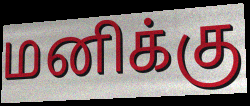
மனிக்கு